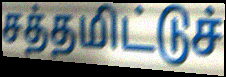
சத்தமிட்டுச்